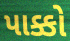
પાક્કો